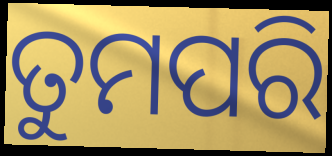
ତୁମପରି